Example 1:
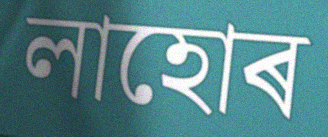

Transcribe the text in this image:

লাহোৰ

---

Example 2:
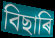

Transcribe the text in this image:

বিছাৰি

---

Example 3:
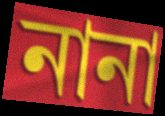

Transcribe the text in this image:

নানা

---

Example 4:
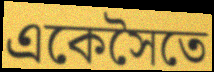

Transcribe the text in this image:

একেসৈতে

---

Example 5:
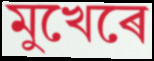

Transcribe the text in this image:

মুখেৰে